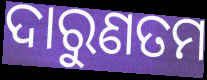
ଦାରୁଣତମ